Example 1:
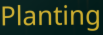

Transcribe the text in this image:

Planting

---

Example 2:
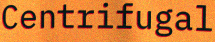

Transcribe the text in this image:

Centrifugal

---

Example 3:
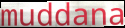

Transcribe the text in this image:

muddana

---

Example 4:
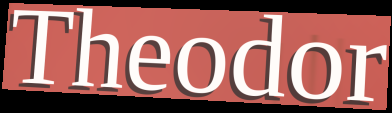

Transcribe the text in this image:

Theodor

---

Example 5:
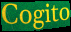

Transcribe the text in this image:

Cogito